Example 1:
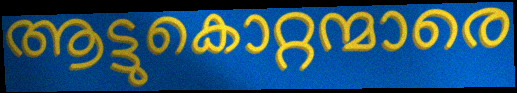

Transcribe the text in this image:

ആട്ടുകൊറ്റന്മാരെ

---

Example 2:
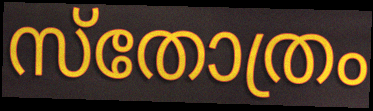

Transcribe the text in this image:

സ്തോത്രം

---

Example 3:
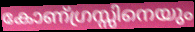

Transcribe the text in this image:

കോണ്ഗ്രസ്സിനെയും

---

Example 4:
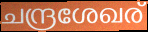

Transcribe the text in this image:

ചന്ദ്രശേഖര്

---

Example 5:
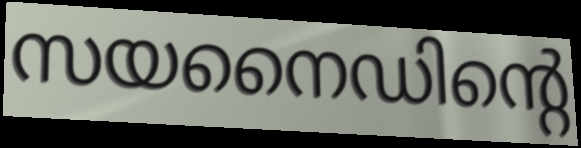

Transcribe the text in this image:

സയനൈഡിന്റെ